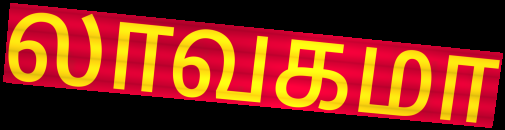
லாவகமா